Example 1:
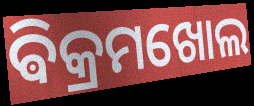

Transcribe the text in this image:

ଵିକ୍ରମଖୋଲ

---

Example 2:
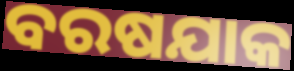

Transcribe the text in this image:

ବରଷଯାକ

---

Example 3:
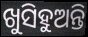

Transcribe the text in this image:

ଖୁସିହୁଅନ୍ତି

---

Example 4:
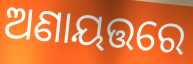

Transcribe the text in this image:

ଅଣାୟତ୍ତରେ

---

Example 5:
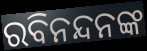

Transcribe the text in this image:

ରବିନନ୍ଦନଙ୍କ